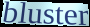
bluster